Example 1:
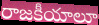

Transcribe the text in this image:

రాజకీయాలూ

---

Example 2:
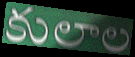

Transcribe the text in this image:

కులాల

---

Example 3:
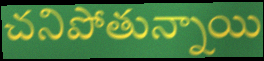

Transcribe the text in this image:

చనిపోతున్నాయి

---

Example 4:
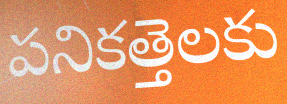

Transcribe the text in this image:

పనికత్తెలకు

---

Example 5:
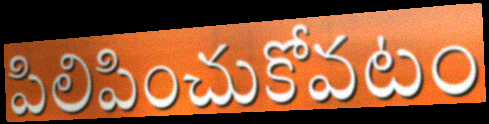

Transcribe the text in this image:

పిలిపించుకోవటం